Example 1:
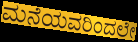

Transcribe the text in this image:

ಮನೆಯವರಿಂದಲೇ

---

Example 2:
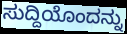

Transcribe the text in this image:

ಸುದ್ದಿಯೊಂದನ್ನು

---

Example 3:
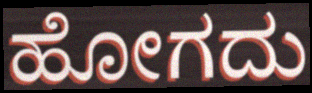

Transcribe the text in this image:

ಹೋಗದು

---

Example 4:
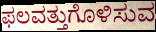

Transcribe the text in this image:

ಫಲವತ್ತುಗೊಳಿಸುವ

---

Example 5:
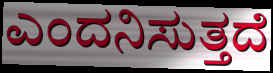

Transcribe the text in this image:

ಎಂದನಿಸುತ್ತದೆ